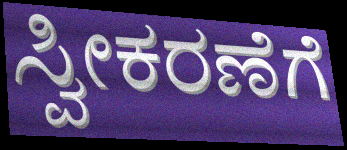
ಸ್ವೀಕರಣೆಗೆ